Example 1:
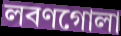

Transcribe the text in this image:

লবণগোলা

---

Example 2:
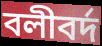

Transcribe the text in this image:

বলীবর্দ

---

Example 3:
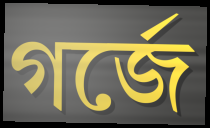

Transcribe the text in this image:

গর্জে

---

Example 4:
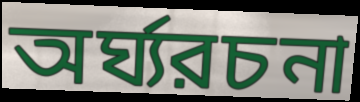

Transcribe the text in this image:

অর্ঘ্যরচনা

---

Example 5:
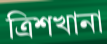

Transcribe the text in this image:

ত্রিশখানা